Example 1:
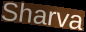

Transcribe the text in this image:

Sharva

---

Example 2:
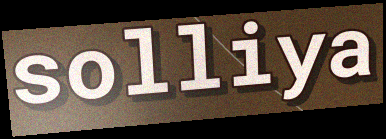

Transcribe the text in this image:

solliya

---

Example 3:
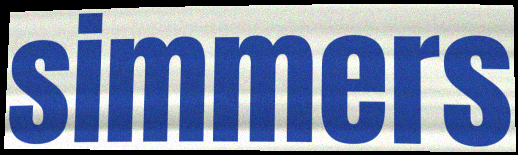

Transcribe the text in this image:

simmers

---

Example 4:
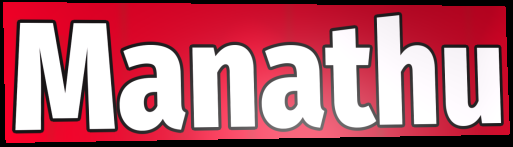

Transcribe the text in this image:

Manathu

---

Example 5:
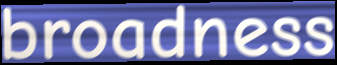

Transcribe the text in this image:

broadness